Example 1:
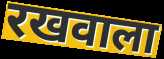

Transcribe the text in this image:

रखवाला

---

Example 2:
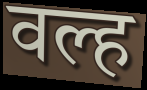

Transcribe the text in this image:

वल्ह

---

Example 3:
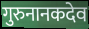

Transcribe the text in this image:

गुरुनानकदेव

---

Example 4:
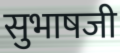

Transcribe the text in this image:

सुभाषजी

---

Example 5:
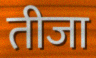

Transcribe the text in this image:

तीजा